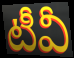
టీవీ